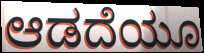
ಆಡದೆಯೂ